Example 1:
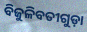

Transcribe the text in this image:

ବିଜୁଳିବତୀଗୁଡ଼ା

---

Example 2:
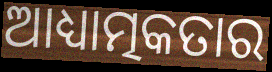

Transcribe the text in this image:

ଆଧ୍ୟାତ୍ମକତାର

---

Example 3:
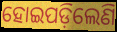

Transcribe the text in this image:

ହୋଇପଡ଼ିଲେଣି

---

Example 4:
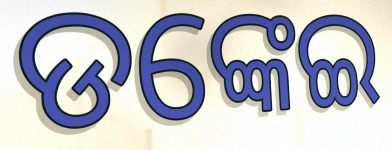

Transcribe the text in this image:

ଡଙ୍କେଇ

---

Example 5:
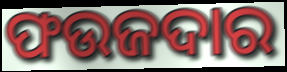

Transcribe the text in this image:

ଫଉଜଦାର